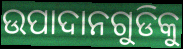
ଉପାଦାନଗୁଡିକୁ